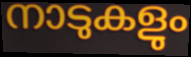
നാടുകളും